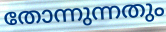
തോന്നുന്നതും